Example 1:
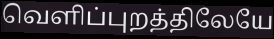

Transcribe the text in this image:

வெளிப்புறத்திலேயே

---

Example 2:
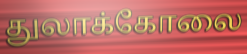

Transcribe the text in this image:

துலாக்கோலை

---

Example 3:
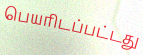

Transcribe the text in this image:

பெயரிடப்பட்டது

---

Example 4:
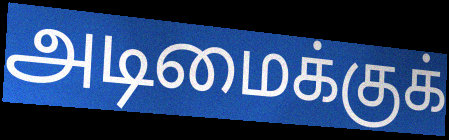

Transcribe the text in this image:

அடிமைக்குக்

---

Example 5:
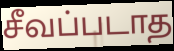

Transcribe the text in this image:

சீவப்படாத